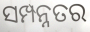
ସମ୍ପନ୍ନତର